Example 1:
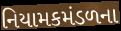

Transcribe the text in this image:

નિયામકમંડળના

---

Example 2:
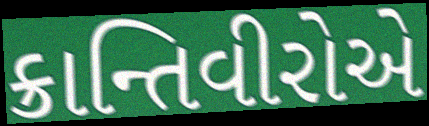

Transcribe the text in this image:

ક્રાન્તિવીરોએ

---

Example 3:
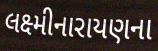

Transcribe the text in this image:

લક્ષ્મીનારાયણના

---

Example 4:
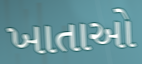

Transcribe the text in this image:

ખાતાઓ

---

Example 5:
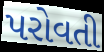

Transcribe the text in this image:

પરોવતી